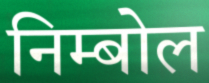
निम्बोल